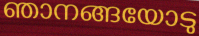
ഞാനങ്ങയോടു